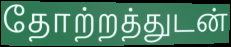
தோற்றத்துடன்